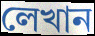
লেখান